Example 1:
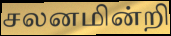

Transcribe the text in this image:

சலனமின்றி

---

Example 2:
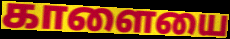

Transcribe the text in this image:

காளையை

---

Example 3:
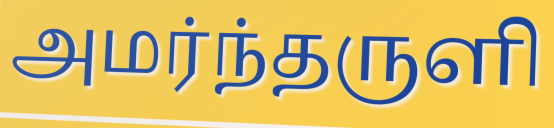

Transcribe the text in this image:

அமர்ந்தருளி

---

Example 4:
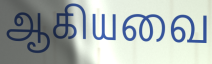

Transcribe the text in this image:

ஆகியவை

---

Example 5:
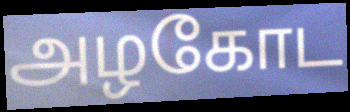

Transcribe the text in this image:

அழகோட